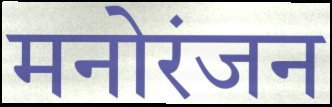
मनोरंजन